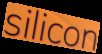
silicon